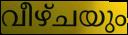
വീഴ്ചയും